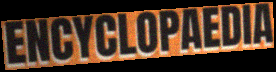
ENCYCLOPAEDIA